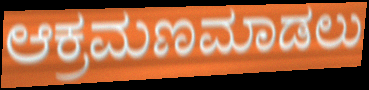
ಆಕ್ರಮಣಮಾಡಲು